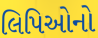
લિપિઓનો